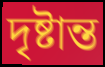
দৃষ্টান্ত